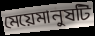
মেয়েমানুষটি